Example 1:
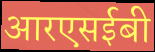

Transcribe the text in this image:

आरएसईबी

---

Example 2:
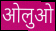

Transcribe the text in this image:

ओलुओ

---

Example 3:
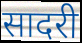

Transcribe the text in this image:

सादरी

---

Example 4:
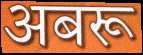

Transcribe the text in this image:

अबरू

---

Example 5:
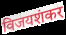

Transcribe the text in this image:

विजयशंकर